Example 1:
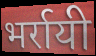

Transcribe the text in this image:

भर्रायी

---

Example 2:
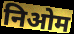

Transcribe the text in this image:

निओम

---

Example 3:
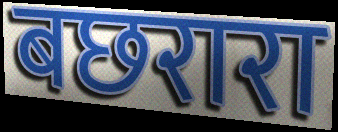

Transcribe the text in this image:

बछरारा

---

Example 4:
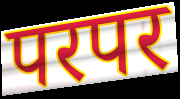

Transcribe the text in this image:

परपर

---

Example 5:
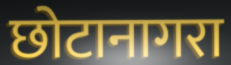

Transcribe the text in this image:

छोटानागरा